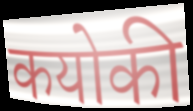
कयोकी